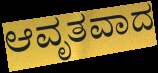
ಆವೃತವಾದ